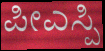
ಪೀಎಸ್ಪಿ